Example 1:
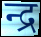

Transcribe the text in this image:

न्द्र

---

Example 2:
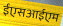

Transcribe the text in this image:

ईएसआईएम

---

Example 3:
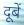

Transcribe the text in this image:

दूबें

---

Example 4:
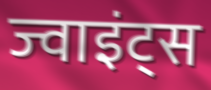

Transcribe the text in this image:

ज्वाइंट्स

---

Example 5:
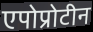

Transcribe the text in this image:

एपोप्रोटीन